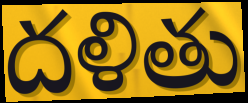
దళితు